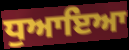
ਧੁਆਇਆ